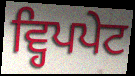
ਵ੍ਹਿਪਪੇਟ